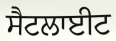
ਸੈਟਲਾਈਟ